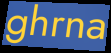
ghrna